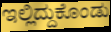
ಇಲ್ಲಿದ್ದುಕೊಂಡು